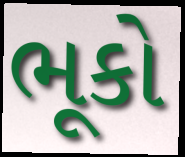
ભૂકો